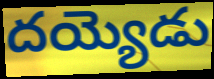
దయ్యెడు